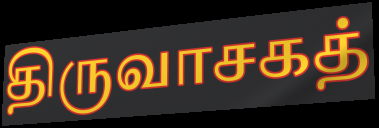
திருவாசகத்